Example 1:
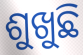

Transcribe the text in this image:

ଶୁଖୁଛି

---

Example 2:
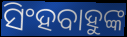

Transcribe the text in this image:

ସିଂହବାହୁଙ୍କ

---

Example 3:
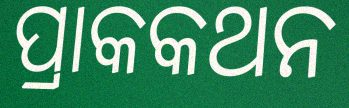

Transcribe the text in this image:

ପ୍ରାକକଥନ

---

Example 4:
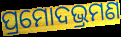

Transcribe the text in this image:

ପ୍ରମୋଦଭ୍ରମଣ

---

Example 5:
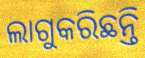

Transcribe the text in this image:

ଲାଗୁକରିଛନ୍ତି